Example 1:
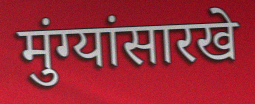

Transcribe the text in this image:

मुंग्यांसारखे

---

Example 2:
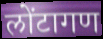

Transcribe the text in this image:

लोंटागण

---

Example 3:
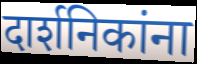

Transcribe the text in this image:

दार्शनिकांना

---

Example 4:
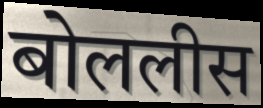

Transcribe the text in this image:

बोललीस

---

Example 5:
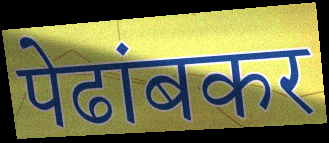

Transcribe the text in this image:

पेढांबकर